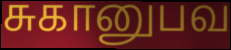
சுகானுபவ